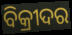
ବିକ୍ରୀଦର